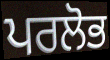
ਪਰਲੋਭ